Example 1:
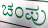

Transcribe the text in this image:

ಚಂಪು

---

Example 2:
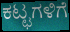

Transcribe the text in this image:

ಕಟ್ಟಗಳಿಗೆ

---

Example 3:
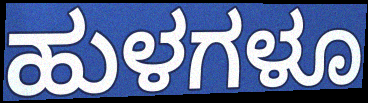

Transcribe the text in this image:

ಹುಳಗಳೂ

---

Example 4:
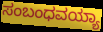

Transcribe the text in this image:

ಸಂಬಂಧವಯ್ಯಾ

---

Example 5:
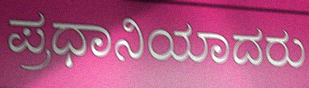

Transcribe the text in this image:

ಪ್ರಧಾನಿಯಾದರು